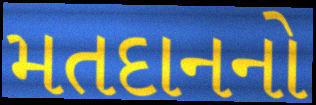
મતદાનનો